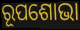
ରୂପଶୋଭା